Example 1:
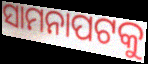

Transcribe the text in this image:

ସାମନାପଟକୁ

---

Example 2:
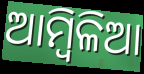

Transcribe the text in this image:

ଆମ୍ୱିଳିଆ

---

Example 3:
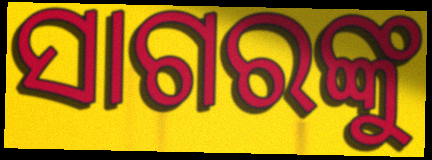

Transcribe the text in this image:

ସାଗରଙ୍କୁ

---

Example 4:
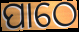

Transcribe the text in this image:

ପାଠେ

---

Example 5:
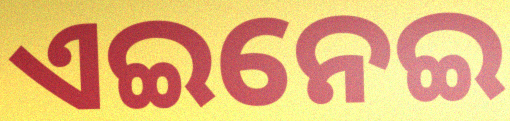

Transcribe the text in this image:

ଏଇନେଇ